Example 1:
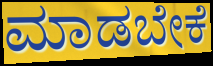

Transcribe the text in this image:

ಮಾಡಬೇಕೆ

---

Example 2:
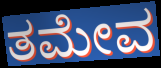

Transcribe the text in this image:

ತಮೇವ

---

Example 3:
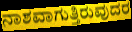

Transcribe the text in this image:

ನಾಶವಾಗುತ್ತಿರುವುದರ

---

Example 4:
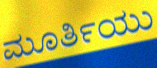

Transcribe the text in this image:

ಮೂರ್ತಿಯು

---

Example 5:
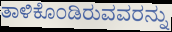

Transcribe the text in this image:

ತಾಳಿಕೊಂಡಿರುವವರನ್ನು